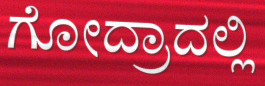
ಗೋದ್ರಾದಲ್ಲಿ